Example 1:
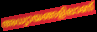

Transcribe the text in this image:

അധ്യായങ്ങളിലാണ്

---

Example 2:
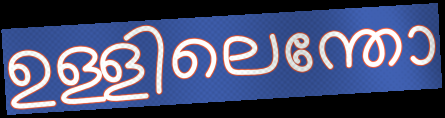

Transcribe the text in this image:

ഉള്ളിലെന്തോ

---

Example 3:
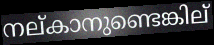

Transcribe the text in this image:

നല്കാനുണ്ടെങ്കില്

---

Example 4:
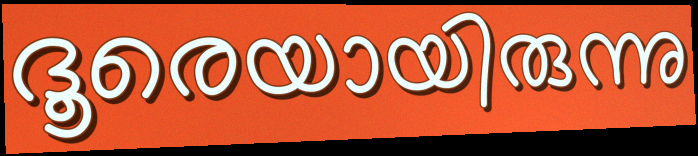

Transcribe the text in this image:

ദൂരെയായിരുന്നു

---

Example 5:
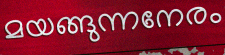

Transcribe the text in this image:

മയങ്ങുന്നനേരം